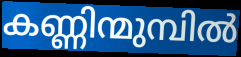
കണ്ണിന്മുമ്പിൽ